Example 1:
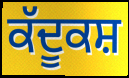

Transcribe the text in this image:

ਕੱਦੂਕਸ਼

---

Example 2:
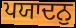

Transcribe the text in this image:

ਪਯਾਦਨੁ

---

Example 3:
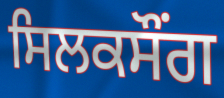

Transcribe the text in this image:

ਸਿਲਕਸੌਂਗ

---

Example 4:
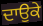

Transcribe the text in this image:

ਦਾਉਕੇ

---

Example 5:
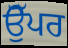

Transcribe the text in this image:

ਉੋੱਪਰ